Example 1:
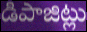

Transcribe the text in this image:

డిపాజిట్లు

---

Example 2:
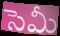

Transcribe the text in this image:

సెమీ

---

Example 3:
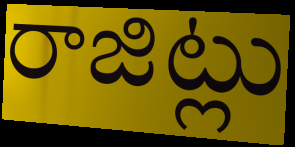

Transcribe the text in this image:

రాజిట్లు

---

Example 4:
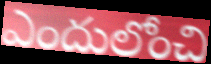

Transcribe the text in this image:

ఎందులోంచి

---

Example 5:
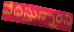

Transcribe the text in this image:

వేధిస్తున్నారని